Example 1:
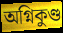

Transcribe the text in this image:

অগ্নিকুণ্ড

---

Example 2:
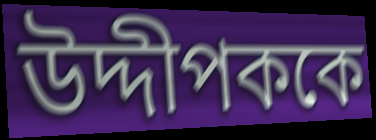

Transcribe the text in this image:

উদ্দীপককে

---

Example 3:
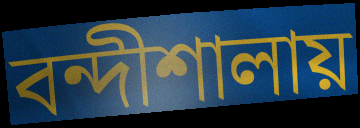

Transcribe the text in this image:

বন্দীশালায়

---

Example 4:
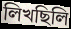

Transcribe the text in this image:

লিখছিলি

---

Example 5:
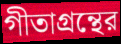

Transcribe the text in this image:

গীতাগ্রন্থের